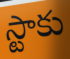
స్టాకు